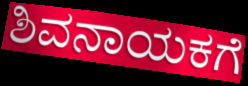
ಶಿವನಾಯಕಗೆ